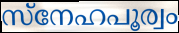
സ്നേഹപൂര്വം